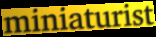
miniaturist